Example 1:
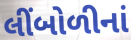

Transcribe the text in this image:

લીંબોળીનાં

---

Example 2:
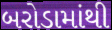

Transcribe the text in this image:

બરોડામાંથી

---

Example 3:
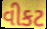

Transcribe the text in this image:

વીકટ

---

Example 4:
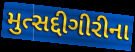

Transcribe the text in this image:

મુત્સદ્દીગીરીના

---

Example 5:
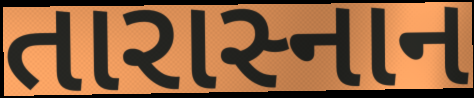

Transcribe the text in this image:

તારાસ્નાન